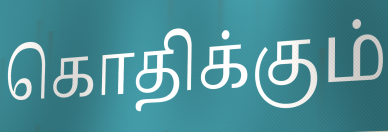
கொதிக்கும்